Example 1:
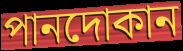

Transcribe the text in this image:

পানদোকান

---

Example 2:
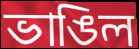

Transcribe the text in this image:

ভাঙিল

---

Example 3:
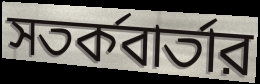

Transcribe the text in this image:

সতর্কবার্তার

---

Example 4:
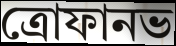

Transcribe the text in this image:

ত্রোফানভ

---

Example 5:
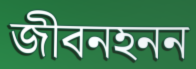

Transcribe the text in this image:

জীবনহনন